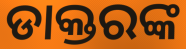
ଡାକ୍ତରଙ୍କ